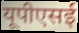
यूपीएसई